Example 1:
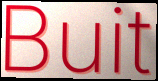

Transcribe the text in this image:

Buit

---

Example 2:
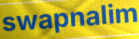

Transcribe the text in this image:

swapnalim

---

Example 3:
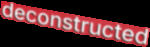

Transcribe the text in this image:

deconstructed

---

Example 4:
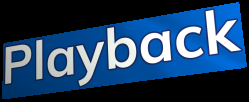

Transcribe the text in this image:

Playback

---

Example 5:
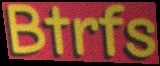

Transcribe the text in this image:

Btrfs